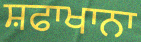
ਸ਼ਫਾਖਾਨਾ